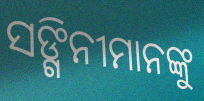
ସଙ୍ଗିନୀମାନଙ୍କୁ